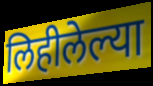
लिहीलेल्या